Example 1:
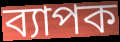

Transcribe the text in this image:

ব্যাপক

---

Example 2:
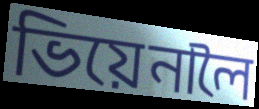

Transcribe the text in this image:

ভিয়েনালৈ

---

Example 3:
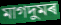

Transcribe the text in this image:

মাগদুমৰ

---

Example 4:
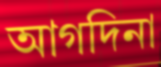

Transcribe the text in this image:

আগদিনা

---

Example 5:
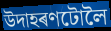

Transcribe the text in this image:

উদাহৰণটোলৈ